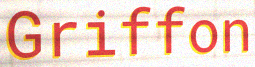
Griffon